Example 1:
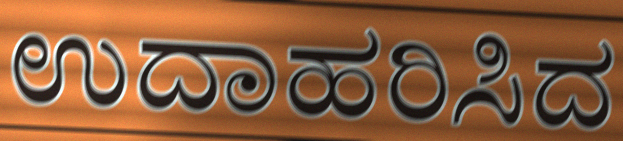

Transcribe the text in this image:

ಉದಾಹರಿಸಿದ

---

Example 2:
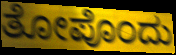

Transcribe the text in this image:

ತೋಪೊಂದು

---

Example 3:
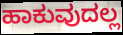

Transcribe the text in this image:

ಹಾಕುವುದಲ್ಲ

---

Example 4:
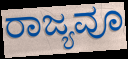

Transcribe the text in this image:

ರಾಜ್ಯವೂ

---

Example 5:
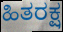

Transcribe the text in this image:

ಹಿತರಕ್ಷ